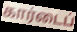
கார்டைப்